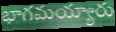
భాగమయ్యారు